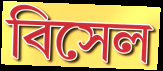
বিসেল